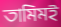
তামিমই